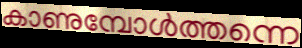
കാണുമ്പോൾത്തന്നെ